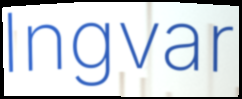
Ingvar